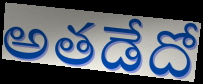
అతడేదో